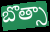
బొత్సా